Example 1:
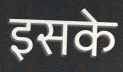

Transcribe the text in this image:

इसके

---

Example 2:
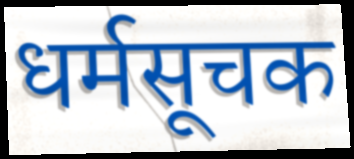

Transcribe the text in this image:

धर्मसूचक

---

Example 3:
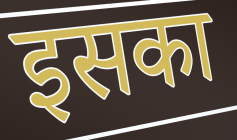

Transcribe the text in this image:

इसका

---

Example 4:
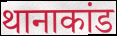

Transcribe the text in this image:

थानाकांड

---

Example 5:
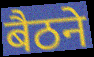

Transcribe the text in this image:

बैठने